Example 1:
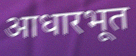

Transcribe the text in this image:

आधारभूत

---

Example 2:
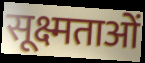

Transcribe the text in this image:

सूक्ष्मताओं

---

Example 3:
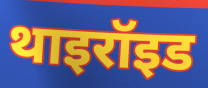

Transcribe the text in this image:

थाइरॉइड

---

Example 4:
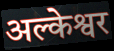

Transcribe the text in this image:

अल्केश्वर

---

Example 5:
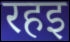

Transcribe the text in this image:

रहइ